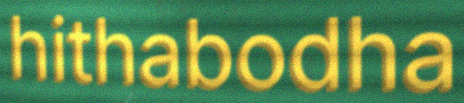
hithabodha